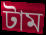
টাম